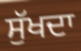
ਸੁੱਖਦਾ